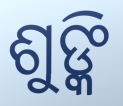
ଶୁଙ୍କି